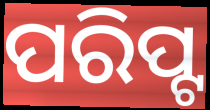
ପରିପ୍ଟ